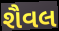
શૈવલ